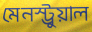
মেনস্ট্রুয়াল